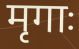
मृगाः